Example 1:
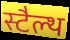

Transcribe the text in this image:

स्टैल्थ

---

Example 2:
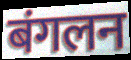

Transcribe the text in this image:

बंगलन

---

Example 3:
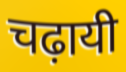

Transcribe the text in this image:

चढ़ायी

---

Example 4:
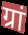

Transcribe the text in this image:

ग्रां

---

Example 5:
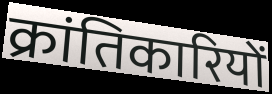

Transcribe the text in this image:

क्रांतिकारियों